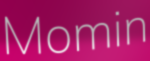
Momin